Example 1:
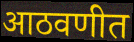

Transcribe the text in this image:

आठवणीत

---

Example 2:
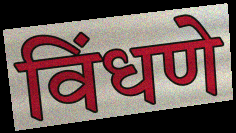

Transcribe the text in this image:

विंधणे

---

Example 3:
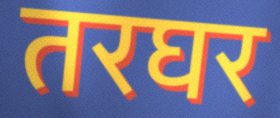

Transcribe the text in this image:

तरघर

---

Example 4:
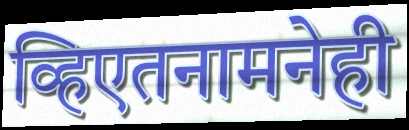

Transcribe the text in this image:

व्हिएतनामनेही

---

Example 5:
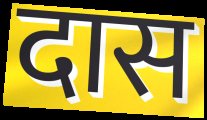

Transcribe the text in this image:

दास